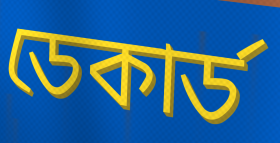
ডেকার্ড